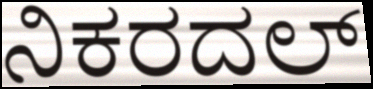
ನಿಕರದಲ್